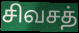
சிவசத்